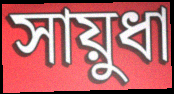
সায়ুধা